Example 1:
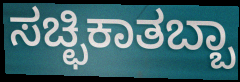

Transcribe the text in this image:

ಸಚ್ಛಿಕಾತಬ್ಬಾ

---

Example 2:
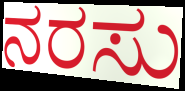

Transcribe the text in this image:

ನರಸು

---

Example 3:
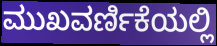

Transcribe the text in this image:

ಮುಖವರ್ಣಿಕೆಯಲ್ಲಿ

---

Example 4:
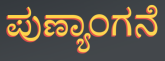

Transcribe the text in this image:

ಪುಣ್ಯಾಂಗನೆ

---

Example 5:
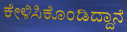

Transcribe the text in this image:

ಕೇಳಿಸಿಕೊಂಡಿದ್ದಾನೆ